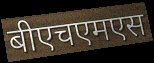
बीएचएमएस